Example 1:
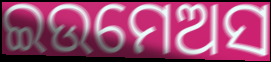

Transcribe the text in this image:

ଇଉମେଅସ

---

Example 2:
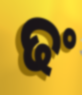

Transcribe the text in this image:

ଢଂ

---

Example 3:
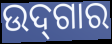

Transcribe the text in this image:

ଉଦ୍‌ଗାର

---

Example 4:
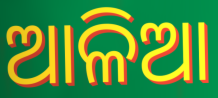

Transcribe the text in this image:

ଆଳିଆ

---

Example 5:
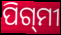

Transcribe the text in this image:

ପିଗ୍‌ମୀ